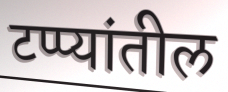
टप्प्यांतील